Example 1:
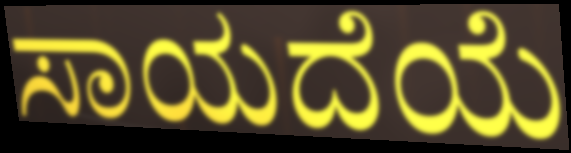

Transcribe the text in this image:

ಸಾಯದೆಯೆ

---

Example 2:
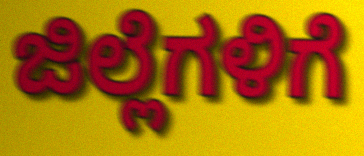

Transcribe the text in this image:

ಜಿಲ್ಲೆಗಳಿಗೆ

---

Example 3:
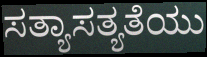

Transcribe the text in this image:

ಸತ್ಯಾಸತ್ಯತೆಯು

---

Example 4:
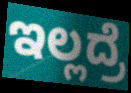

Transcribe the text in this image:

ಇಲ್ಲದ್ರೆ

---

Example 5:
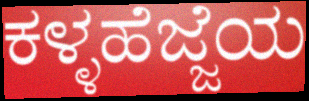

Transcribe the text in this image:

ಕಳ್ಳಹೆಜ್ಜೆಯ